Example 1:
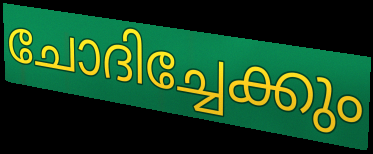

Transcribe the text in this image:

ചോദിച്ചേക്കും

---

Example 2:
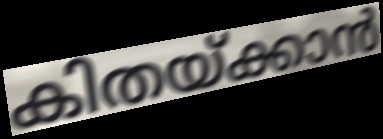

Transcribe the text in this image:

കിതയ്ക്കാൻ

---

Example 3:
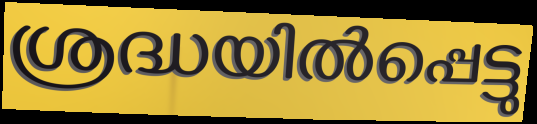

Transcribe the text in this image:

ശ്രദ്ധയിൽപ്പെട്ടു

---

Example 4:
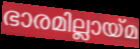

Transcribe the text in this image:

ഭാരമില്ലായ്മ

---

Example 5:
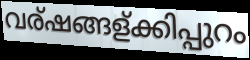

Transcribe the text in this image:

വര്ഷങ്ങള്ക്കിപ്പുറം